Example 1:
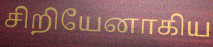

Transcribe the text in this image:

சிறியேனாகிய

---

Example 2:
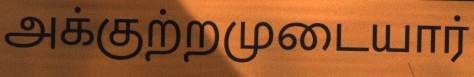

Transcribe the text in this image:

அக்குற்றமுடையார்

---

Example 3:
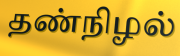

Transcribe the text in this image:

தண்நிழல்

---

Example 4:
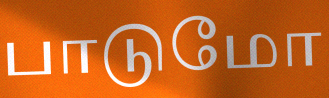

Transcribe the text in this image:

பாடுமோ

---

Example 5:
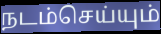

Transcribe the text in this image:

நடம்செய்யும்